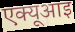
एक्यूआइ